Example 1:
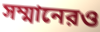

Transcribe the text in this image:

সম্মানেরও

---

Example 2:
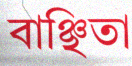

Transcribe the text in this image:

বাঞ্ছিতা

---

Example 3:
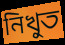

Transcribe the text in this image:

নিখুত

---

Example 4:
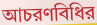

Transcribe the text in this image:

আচরণবিধির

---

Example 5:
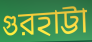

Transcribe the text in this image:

গুরহাট্টা